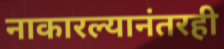
नाकारल्यानंतरही